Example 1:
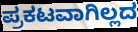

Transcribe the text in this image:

ಪ್ರಕಟವಾಗಿಲ್ಲದ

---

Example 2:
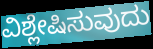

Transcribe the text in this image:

ವಿಶ್ಲೇಷಿಸುವುದು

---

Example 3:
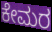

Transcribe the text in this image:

ಕೇಮರ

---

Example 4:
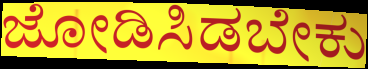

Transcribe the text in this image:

ಜೋಡಿಸಿಡಬೇಕು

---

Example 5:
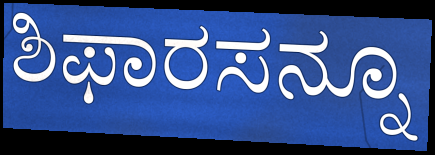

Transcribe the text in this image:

ಶಿಫಾರಸನ್ನೂ